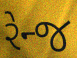
રેન્જ